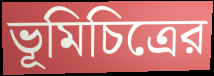
ভূমিচিত্রের